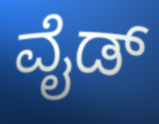
ವೈಡ್